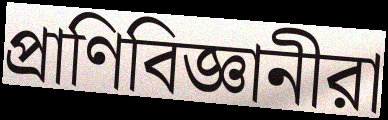
প্রাণিবিজ্ঞানীরা